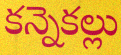
కన్నెకల్లు